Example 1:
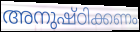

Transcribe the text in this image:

അനുഷ്ഠിക്കണം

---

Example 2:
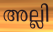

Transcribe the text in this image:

അല്ലി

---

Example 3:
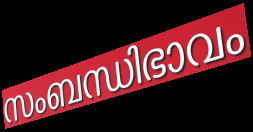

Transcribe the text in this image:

സംബന്ധിഭാവം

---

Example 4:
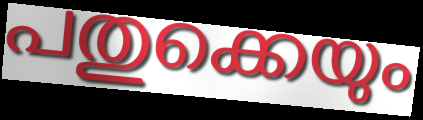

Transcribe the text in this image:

പതുക്കെയും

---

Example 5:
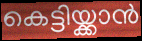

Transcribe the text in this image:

കെട്ടിയ്ക്കാൻ